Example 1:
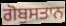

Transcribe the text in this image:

ਗੋਬੁਸਤਾਨ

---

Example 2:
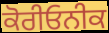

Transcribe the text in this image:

ਕੋਰੀਓਨੀਕ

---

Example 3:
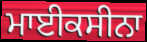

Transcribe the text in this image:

ਮਾਈਕਸੀਨਾ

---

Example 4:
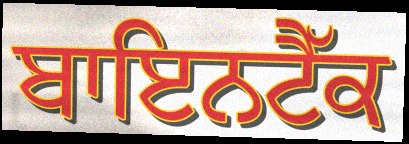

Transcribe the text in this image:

ਬਾਇਨਟੈੱਕ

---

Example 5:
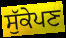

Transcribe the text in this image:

ਸੁੱਕੇਪਣ